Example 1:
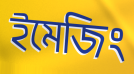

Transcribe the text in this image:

ইমেজিং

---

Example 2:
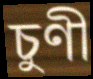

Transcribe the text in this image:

চুণী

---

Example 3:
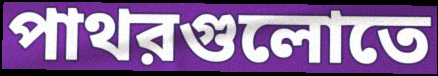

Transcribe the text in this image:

পাথরগুলোতে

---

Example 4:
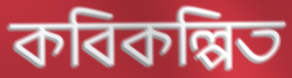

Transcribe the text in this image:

কবিকল্পিত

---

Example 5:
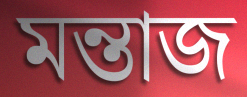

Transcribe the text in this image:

মন্তাজ